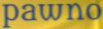
pawno